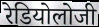
रेडियोलोजी